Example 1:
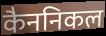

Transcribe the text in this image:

कैननिकल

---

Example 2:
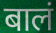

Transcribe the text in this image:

बालं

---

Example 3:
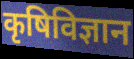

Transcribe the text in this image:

कृषिविज्ञान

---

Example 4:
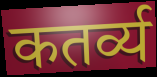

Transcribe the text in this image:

कतर्व्य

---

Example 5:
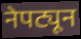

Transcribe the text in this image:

नेपट्यून